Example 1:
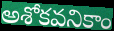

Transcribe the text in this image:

అశోకవనికాం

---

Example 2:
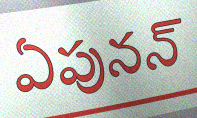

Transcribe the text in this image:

ఏపునన్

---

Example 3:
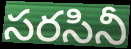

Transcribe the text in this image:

సరసినీ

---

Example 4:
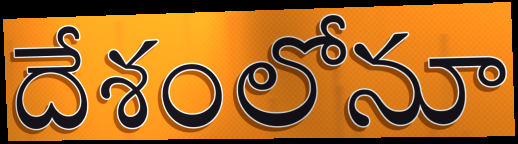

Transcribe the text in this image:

దేశంలోనూ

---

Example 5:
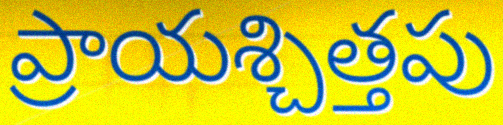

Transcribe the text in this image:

ప్రాయశ్చిత్తపు